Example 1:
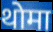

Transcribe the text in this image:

थोमा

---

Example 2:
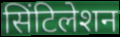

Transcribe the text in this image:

सिंटिलेशन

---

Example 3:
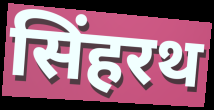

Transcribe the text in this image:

सिंहरथ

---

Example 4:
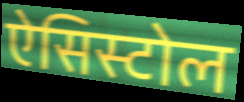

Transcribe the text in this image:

ऐसिस्टोल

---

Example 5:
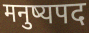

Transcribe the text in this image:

मनुष्यपद